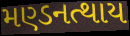
મણ્ડનત્થાય